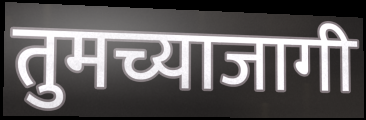
तुमच्याजागी